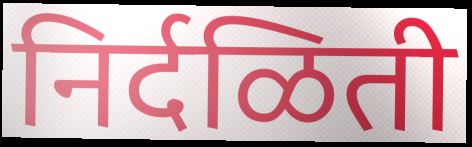
निर्दळिती